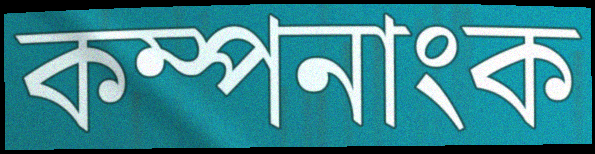
কম্পনাংক